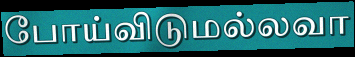
போய்விடுமல்லவா